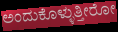
ಅಂದುಕೊಳ್ಳುತ್ತೀರೋ